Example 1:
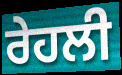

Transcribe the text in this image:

ਰੇਹਲੀ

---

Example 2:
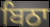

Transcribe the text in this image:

ਬਿਠਾ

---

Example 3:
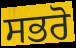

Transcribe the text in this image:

ਸਭਰੋ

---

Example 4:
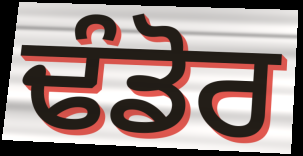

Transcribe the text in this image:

ਢੰਡੋਰ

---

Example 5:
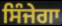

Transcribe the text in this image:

ਸਿੰਜੇਗਾ